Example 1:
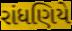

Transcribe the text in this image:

રાંધણિયે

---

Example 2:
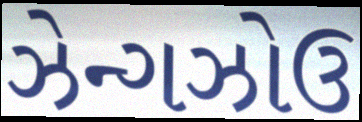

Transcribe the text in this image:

ઝેન્ગઝોઉ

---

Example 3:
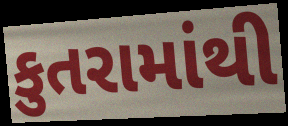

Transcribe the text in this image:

કુતરામાંથી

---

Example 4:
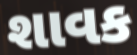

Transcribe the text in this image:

શાવક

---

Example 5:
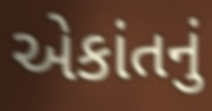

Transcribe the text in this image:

એકાંતનું